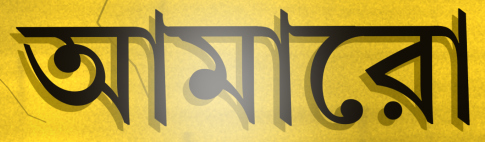
আমারো